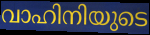
വാഹിനിയുടെ